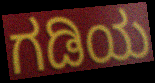
ಗಡಿಯ